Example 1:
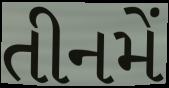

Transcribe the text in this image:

તીનમેં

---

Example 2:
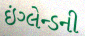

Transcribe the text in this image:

ઇંગ્લેન્ડની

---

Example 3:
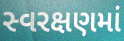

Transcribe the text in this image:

સ્વરક્ષણમાં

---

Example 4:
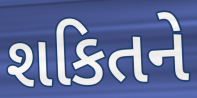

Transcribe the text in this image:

શકિતને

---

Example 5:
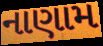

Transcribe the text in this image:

નાણામ